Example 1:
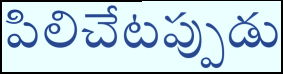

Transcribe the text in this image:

పిలిచేటప్పుడు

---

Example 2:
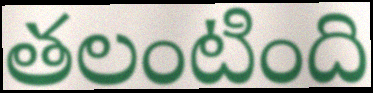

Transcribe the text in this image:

తలంటింది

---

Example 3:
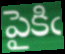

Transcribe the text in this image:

పైకిఁ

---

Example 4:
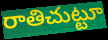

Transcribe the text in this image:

రాతిచుట్టూ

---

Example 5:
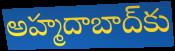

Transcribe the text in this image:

అహ్మదాబాద్‌కు